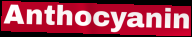
Anthocyanin